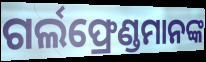
ଗର୍ଲଫ୍ରେଣ୍ଡମାନଙ୍କ